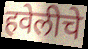
हवेलीचे